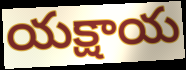
యక్షాయ